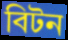
বিটন